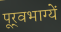
पूर्वभाग्यें